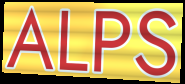
ALPS